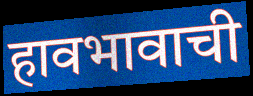
हावभावाची